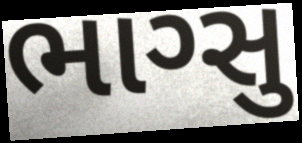
ભાગ્સુ